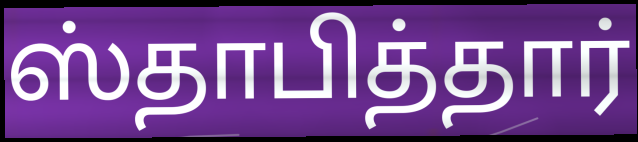
ஸ்தாபித்தார்